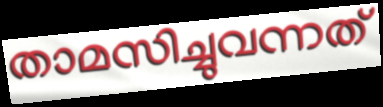
താമസിച്ചുവന്നത്